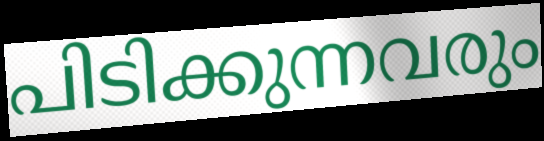
പിടിക്കുന്നവരും